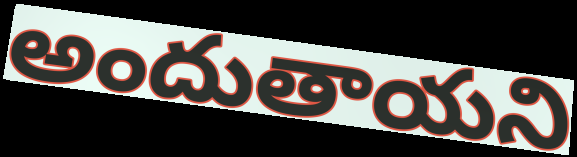
అందుతాయని